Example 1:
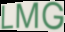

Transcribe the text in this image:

LMG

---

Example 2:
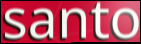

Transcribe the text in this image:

santo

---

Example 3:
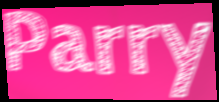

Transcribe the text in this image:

Parry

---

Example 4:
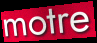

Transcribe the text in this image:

motre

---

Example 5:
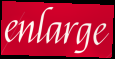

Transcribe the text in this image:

enlarge